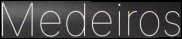
Medeiros